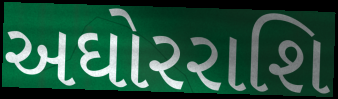
અઘોરરાશિ